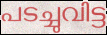
പടച്ചുവിട്ട